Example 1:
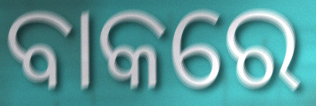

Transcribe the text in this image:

ବାକରେ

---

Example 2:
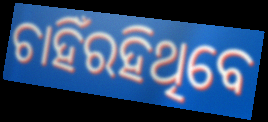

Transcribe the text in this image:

ଚାହିଁରହିଥିବେ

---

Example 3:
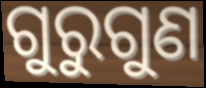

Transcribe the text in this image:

ଗୁରୁଗୁଣ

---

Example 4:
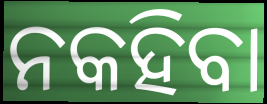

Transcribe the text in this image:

ନକହିବା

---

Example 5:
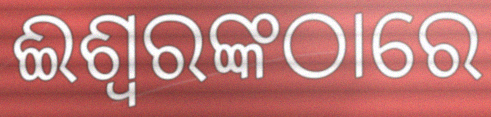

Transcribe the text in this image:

ଈଶ୍ୱରଙ୍କଠାରେ